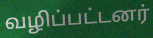
வழிப்பட்டனர்